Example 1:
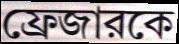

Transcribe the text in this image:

ফ্রেজারকে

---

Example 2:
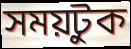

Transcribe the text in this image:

সময়টুক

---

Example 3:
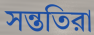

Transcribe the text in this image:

সন্ততিরা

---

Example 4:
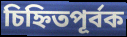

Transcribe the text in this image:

চিহ্নিতপূর্বক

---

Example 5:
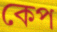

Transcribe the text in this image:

কেপ